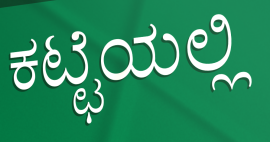
ಕಟ್ಟೆಯಲ್ಲಿ